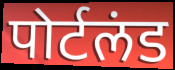
पोर्टलंड